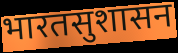
भारतसुशासन